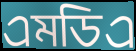
এমডিএ